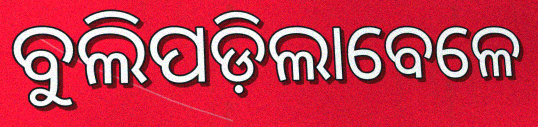
ବୁଲିପଡ଼ିଲାବେଳେ